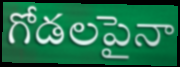
గోడలపైనా